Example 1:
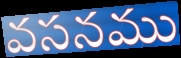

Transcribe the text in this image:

వసనము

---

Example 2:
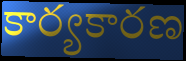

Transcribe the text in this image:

కార్యకారణ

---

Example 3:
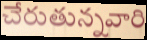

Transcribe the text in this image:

చేరుతున్నవారి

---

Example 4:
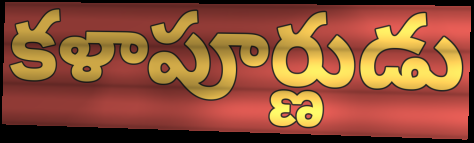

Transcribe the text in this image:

కళాపూర్ణుడు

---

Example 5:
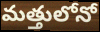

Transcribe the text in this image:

మత్తులోనో